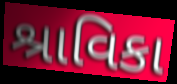
શ્રાવિકા